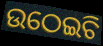
ଉଠେଇଚି